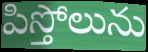
పిస్తోలును